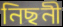
নিছনী